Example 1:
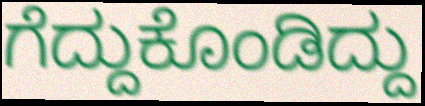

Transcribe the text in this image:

ಗೆದ್ದುಕೊಂಡಿದ್ದು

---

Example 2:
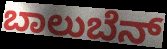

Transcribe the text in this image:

ಬಾಲುಬೆನ್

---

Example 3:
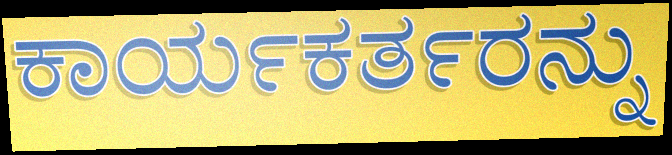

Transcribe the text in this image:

ಕಾರ್ಯಕರ್ತರನ್ನು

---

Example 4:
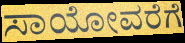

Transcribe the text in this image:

ಸಾಯೋವರೆಗೆ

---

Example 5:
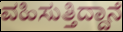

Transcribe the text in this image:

ವಹಿಸುತ್ತಿದ್ದಾನೆ